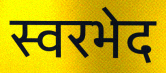
स्वरभेद